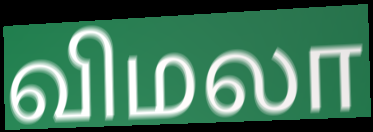
விமலா